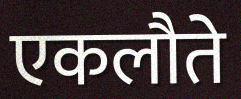
एकलौते